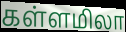
கள்ளமிலா